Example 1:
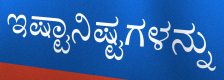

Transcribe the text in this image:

ಇಷ್ಟಾನಿಷ್ಟಗಳನ್ನು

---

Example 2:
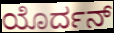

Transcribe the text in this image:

ಯೊರ್ದನ್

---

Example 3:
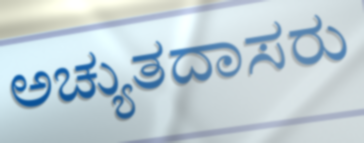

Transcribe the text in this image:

ಅಚ್ಯುತದಾಸರು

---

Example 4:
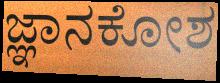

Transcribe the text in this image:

ಜ್ಞಾನಕೋಶ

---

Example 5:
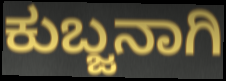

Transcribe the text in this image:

ಕುಬ್ಜನಾಗಿ